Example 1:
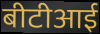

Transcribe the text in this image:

बीटीआई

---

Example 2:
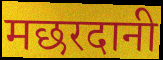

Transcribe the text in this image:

मछरदानी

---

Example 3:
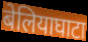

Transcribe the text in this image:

बेलियाघाटा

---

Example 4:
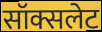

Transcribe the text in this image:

सॉक्सलेट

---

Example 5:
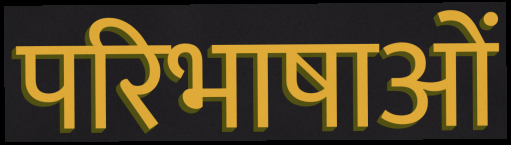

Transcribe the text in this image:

परिभाषाओं